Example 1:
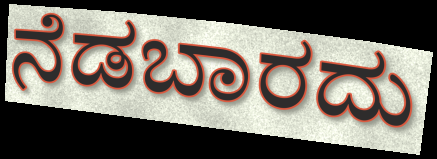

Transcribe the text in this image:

ನೆಡಬಾರದು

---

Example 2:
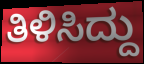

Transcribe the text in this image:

ತಿಳಿಸಿದ್ದು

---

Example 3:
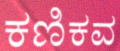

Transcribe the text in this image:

ಕಣಿಕವ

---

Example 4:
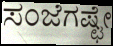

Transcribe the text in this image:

ಸಂಜೆಗಷ್ಟೇ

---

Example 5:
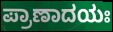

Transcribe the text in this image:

ಪ್ರಾಣಾದಯಃ